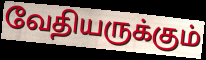
வேதியருக்கும்